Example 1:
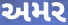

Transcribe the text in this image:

અમર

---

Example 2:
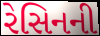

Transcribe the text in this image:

રેસિનની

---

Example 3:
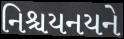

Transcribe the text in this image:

નિશ્ચયનયને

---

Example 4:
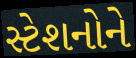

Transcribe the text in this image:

સ્ટેશનોને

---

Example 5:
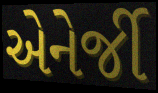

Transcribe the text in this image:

એનેર્જી